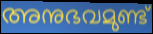
അനുഭവമുണ്ട്